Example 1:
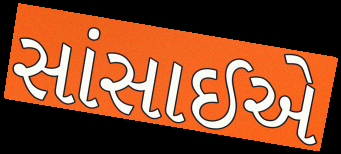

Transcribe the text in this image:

સાંસાઈએ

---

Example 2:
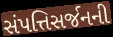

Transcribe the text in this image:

સંપત્તિસર્જનની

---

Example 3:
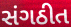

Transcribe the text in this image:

સંગઠીત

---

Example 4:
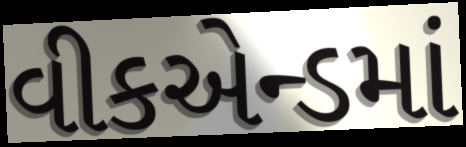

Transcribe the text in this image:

વીકએન્ડમાં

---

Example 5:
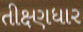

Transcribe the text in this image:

તીક્ષ્ણધાર